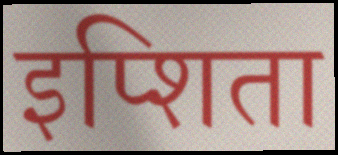
इप्शिता